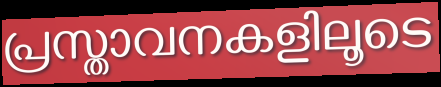
പ്രസ്താവനകളിലൂടെ